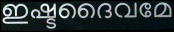
ഇഷ്ടദൈവമേ